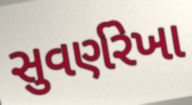
સુવર્ણરેખા